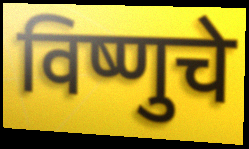
विष्णुचे